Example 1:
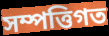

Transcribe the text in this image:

সম্পত্তিগত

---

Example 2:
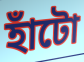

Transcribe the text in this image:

হাঁটো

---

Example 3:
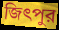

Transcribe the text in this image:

জিৎপুর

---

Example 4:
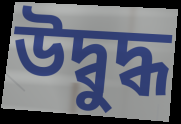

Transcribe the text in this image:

উদ্বুদ্ধ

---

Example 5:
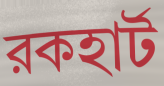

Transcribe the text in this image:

রকহার্ট